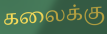
கலைக்கு